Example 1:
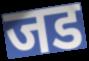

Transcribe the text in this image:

जड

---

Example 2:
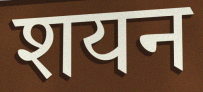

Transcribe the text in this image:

शयन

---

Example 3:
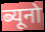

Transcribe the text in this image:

ब्यूनो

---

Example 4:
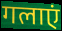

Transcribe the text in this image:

गलाएं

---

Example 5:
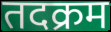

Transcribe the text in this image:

तदक्रम